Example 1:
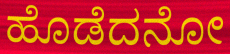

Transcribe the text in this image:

ಹೊಡೆದನೋ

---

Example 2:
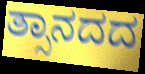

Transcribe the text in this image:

ತ್ಸಾನದದ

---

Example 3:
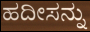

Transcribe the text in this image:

ಹದೀಸನ್ನು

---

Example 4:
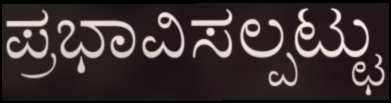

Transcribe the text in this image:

ಪ್ರಭಾವಿಸಲ್ಪಟ್ಟು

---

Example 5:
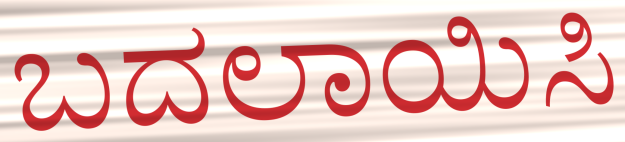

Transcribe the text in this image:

ಬದಲಾಯಿಸಿ